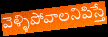
వెళ్ళిపోవాలనిపిస్తే